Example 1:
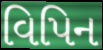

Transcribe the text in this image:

વિપિન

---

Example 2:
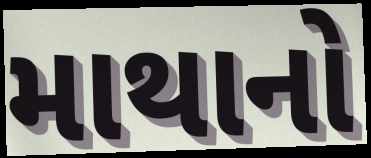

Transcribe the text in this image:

માથાનો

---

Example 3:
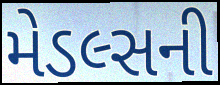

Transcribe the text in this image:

મેડલ્સની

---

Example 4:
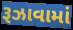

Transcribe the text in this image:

રૂઝાવામાં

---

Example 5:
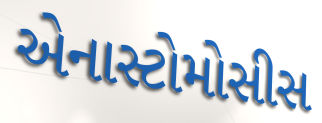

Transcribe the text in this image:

એનાસ્ટોમોસીસ